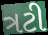
ત્રટી